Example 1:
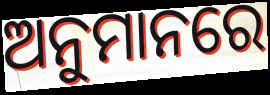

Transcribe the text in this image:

ଅନୁମାନରେ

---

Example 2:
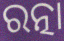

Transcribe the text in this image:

ରତ୍ନା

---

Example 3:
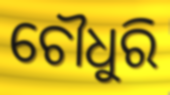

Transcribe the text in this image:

ଚୌଧୁରି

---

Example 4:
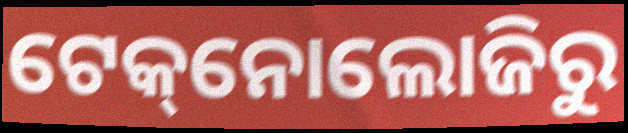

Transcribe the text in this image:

ଟେକ୍‌ନୋଲୋଜିରୁ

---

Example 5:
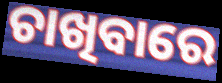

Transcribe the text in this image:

ଚାଖିବାରେ